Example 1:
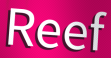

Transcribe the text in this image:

Reef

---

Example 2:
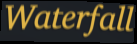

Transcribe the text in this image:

Waterfall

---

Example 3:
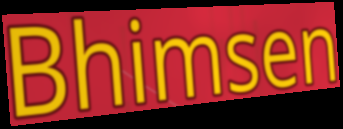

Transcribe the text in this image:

Bhimsen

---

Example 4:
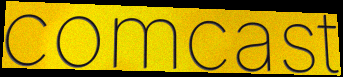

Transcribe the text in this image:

comcast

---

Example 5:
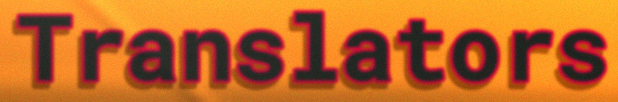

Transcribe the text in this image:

Translators